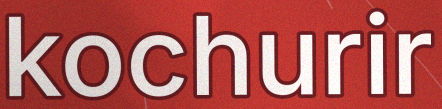
kochurir